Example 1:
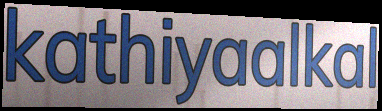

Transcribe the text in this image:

kathiyaalkal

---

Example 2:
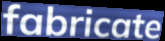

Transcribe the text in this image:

fabricate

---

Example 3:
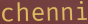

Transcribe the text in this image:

chenni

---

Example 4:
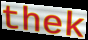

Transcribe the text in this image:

thek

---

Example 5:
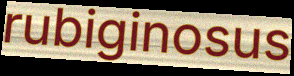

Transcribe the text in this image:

rubiginosus